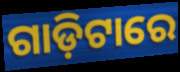
ଗାଡ଼ିଟାରେ